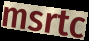
msrtc